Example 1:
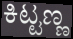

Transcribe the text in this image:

ಕಿಟ್ಟಣ್ಣ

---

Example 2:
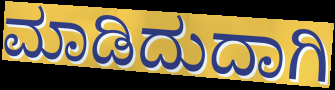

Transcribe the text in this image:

ಮಾಡಿದುದಾಗಿ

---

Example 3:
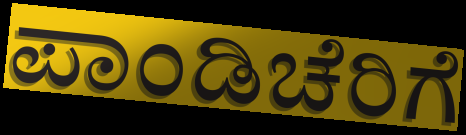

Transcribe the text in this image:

ಪಾಂಡಿಚೆರಿಗೆ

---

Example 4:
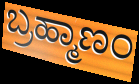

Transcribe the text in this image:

ಬ್ರಹ್ಮಾಣಂ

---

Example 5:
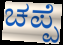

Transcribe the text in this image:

ಚಪ್ಪೆ